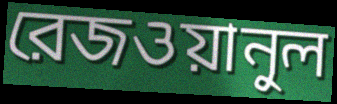
রেজওয়ানুল